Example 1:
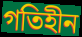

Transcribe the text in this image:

গতিহীন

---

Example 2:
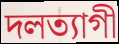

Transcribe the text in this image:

দলত্যাগী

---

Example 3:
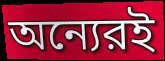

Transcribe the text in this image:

অন্যেরই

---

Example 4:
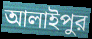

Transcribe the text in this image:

আলাইপুর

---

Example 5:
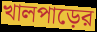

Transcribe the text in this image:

খালপাড়ের